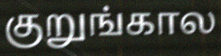
குறுங்கால